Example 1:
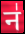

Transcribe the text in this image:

न॑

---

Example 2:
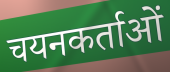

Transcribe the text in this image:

चयनकर्ताओं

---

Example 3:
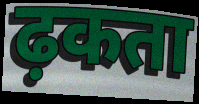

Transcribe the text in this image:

ढ़कता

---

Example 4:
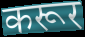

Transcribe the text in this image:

करूर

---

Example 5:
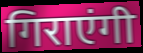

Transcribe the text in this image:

गिराएंगी